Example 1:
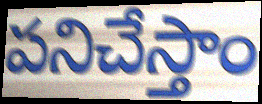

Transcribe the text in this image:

పనిచేస్తాం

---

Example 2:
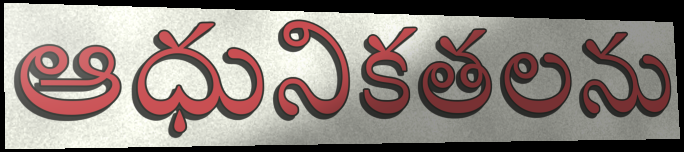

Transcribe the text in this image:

ఆధునికతలను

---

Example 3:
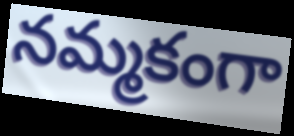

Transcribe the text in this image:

నమ్మకంగా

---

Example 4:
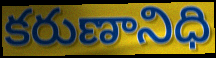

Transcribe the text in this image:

కరుణానిధి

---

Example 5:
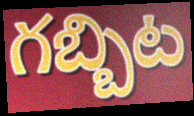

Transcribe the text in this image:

గబ్బిట